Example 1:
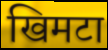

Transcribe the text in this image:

खिमटा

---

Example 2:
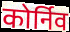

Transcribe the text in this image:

कोर्निव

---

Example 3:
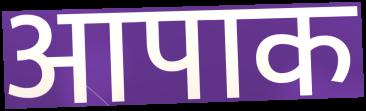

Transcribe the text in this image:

आपाक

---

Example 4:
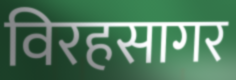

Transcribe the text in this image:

विरहसागर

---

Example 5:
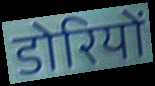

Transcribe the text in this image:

डोरियों